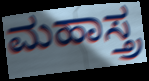
ಮಹಾಸ್ತ್ರ